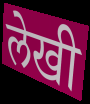
लेखी